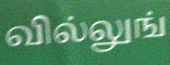
வில்லுங்